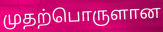
முதற்பொருளான